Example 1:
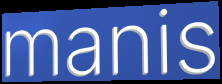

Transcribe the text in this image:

manis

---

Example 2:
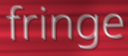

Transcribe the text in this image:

fringe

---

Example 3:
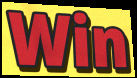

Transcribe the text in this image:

Win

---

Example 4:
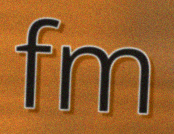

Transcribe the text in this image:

fm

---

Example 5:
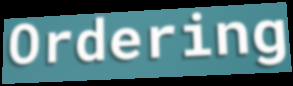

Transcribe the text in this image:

Ordering